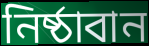
নিষ্ঠাবান